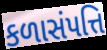
કળાસંપત્તિ